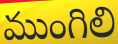
ముంగిలి